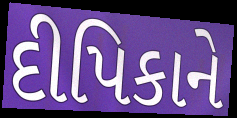
દીપિકાને